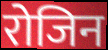
रोजिन